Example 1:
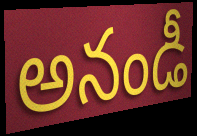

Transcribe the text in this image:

అనండీ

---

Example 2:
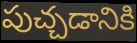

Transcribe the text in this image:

పుచ్చడానికి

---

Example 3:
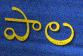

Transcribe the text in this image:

పాల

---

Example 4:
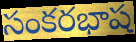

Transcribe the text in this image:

సంకరభాష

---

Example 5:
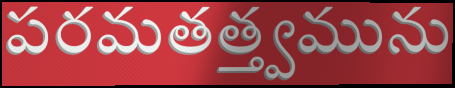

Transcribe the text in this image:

పరమతత్త్వమును